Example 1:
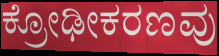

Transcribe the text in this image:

ಕ್ರೋಢೀಕರಣವು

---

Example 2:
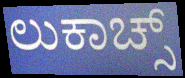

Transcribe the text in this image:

ಲುಕಾಚ್ಸ್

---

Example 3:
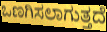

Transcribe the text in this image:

ಒಣಗಿಸಲಾಗುತ್ತದೆ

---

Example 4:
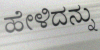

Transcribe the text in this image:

ಹೇಳಿದನ್ನು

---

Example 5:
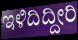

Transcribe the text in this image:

ಇಳಿದಿದ್ದೀರಿ